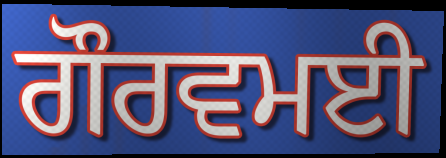
ਗੌਰਵਮਈ